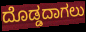
ದೊಡ್ಡದಾಗಲು